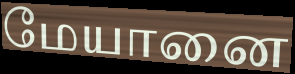
மேயானை